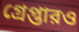
গ্রেপ্তারও